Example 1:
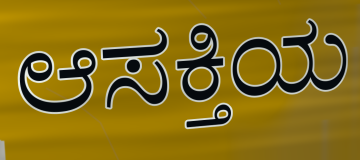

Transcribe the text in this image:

ಆಸಕ್ತಿಯ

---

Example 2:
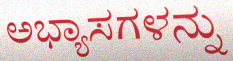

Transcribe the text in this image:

ಅಭ್ಯಾಸಗಳನ್ನು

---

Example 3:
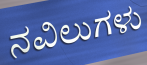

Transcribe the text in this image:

ನವಿಲುಗಳು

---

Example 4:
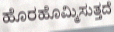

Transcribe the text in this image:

ಹೊರಹೊಮ್ಮಿಸುತ್ತದೆ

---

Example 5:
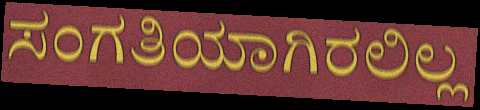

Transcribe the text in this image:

ಸಂಗತಿಯಾಗಿರಲಿಲ್ಲ